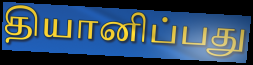
தியானிப்பது